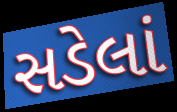
સડેલાં